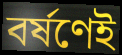
বর্ষণেই